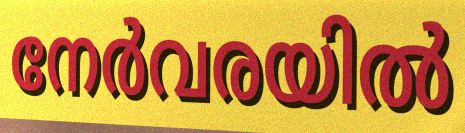
നേർവരയിൽ